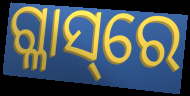
ଗ୍ଳାସ୍‌ରେ